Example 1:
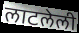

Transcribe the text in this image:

लाटलेली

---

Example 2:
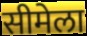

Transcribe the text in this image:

सीमेला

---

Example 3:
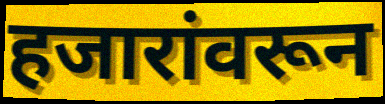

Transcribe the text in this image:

हजारांवरून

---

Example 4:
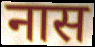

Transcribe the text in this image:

नास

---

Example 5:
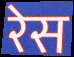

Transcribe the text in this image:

रेस